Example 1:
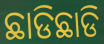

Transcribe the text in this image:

ଛାଡିଛାଡି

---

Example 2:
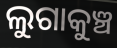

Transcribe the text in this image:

ଲୁଗାକୁଞ୍ଚ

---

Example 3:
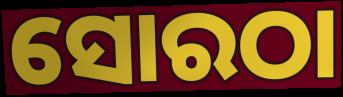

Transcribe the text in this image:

ସୋରଠା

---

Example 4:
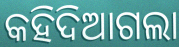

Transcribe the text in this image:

କହିଦିଆଗଲା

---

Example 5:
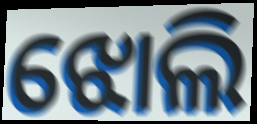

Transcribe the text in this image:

ଝୋଲି